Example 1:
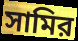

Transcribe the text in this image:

সামির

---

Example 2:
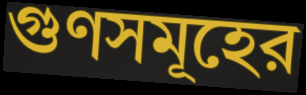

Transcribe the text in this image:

গুণসমূহের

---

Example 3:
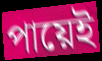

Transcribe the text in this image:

পায়েই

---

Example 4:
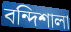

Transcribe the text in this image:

বন্দিশালা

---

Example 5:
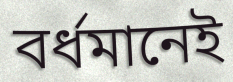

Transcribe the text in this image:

বর্ধমানেই